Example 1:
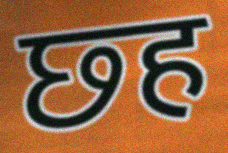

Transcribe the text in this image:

छ्ह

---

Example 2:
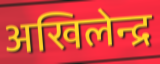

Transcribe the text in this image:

अखिलेन्द्र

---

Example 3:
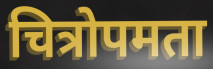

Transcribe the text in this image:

चित्रोपमता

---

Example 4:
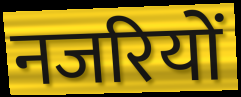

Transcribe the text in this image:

नजरियों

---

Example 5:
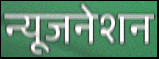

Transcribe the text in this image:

न्यूजनेशन